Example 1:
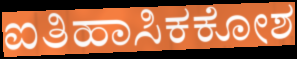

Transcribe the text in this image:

ಐತಿಹಾಸಿಕಕೋಶ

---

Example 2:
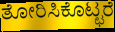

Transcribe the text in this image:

ತೋರಿಸಿಕೊಟ್ಟರೆ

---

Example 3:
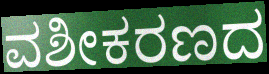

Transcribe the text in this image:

ವಶೀಕರಣದ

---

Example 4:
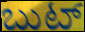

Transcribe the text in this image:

ಬುಟ್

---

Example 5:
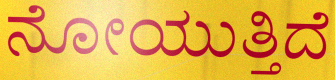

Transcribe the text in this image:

ನೋಯುತ್ತಿದೆ